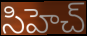
సిహెచ్